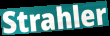
Strahler